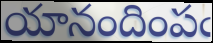
యానందింపఁ